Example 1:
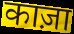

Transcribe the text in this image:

काज़ा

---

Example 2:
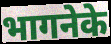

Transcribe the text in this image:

भागनेके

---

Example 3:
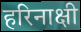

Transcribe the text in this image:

हरिनाक्षी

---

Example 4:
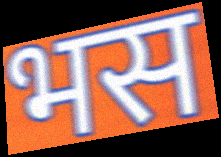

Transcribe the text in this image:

भस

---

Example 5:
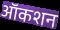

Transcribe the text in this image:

ऑकशन